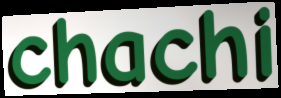
chachi